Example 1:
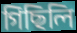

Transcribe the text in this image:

গিছিলি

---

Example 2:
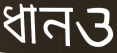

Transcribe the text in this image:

ধানও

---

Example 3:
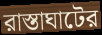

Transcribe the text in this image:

রাস্তাঘাটের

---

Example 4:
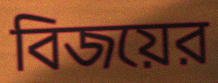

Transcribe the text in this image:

বিজয়ের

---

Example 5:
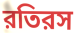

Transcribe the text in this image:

রতিরস